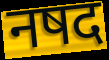
नषद